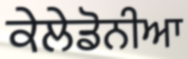
ਕੇਲੇਡੋਨੀਆ